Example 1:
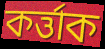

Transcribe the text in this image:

কৰ্ত্তাক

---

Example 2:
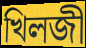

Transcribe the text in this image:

খিলজী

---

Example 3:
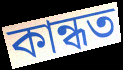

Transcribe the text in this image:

কান্ধত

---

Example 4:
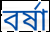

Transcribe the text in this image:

বৰ্ষা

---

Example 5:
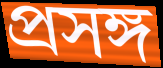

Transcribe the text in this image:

প্ৰসঙ্গ